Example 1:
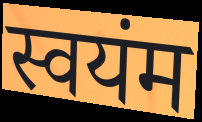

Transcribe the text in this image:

स्वयंम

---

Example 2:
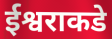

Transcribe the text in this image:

ईश्वराकडे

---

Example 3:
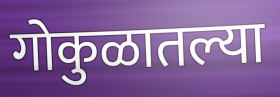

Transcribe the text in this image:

गोकुळातल्या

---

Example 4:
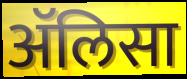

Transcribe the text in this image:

ॲलिसा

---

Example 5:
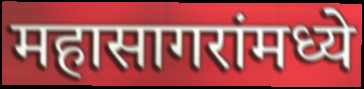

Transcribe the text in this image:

महासागरांमध्ये